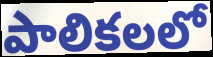
పాలికలలో